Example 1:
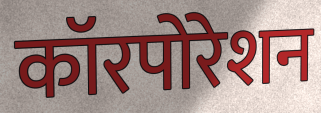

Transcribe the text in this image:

कॉरपोरेशन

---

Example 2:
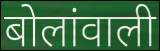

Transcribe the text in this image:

बोलांवाली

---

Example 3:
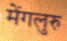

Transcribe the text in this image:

मेंगलुरु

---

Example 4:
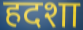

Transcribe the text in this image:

हदशा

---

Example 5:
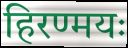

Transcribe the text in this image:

हिरण्मयः